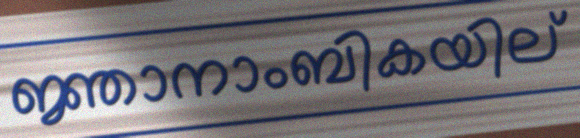
ജ്ഞാനാംബികയില്